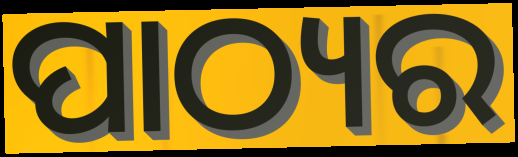
ପାଠ୍ୟର